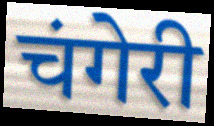
चंगेरी